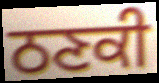
ਠਣਕੀ